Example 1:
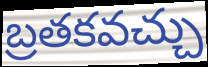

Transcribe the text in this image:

బ్రతకవచ్చు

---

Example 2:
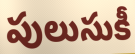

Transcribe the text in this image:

పులుసుకీ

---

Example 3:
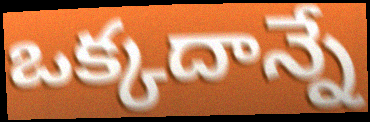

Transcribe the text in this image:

ఒక్కదాన్నే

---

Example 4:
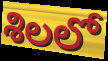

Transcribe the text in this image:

శిలలో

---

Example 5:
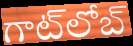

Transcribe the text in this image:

గాట్‍లోబ్